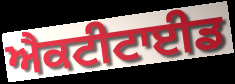
ਐਕਟੀਟਾਈਡ